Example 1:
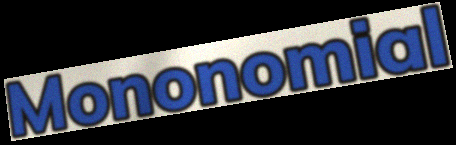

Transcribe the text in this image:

Mononomial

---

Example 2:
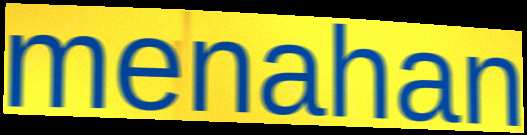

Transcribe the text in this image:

menahan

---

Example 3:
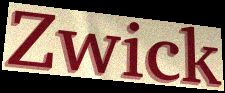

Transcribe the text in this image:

Zwick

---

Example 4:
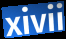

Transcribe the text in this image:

xivii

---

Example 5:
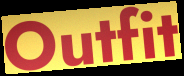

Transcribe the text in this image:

Outfit